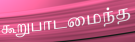
கூறுபாடமைந்த